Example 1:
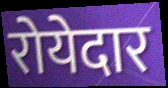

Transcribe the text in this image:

रोयेदार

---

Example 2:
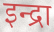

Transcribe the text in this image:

इन्द्रा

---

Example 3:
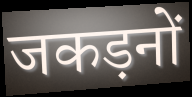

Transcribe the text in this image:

जकड़नों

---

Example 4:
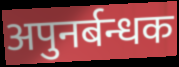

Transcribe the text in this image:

अपुनर्बन्धक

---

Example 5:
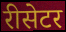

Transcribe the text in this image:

रीसेटर